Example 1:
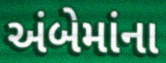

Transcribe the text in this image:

અંબેમાંના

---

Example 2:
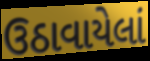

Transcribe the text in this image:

ઉઠાવાયેલાં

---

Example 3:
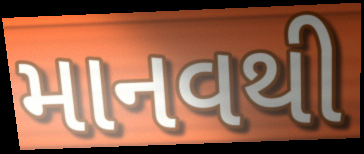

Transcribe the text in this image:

માનવથી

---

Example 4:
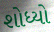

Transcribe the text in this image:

શોધ્યો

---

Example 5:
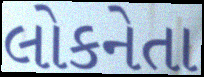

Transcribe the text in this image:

લોકનેતા